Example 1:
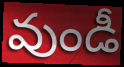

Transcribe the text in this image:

వుండీ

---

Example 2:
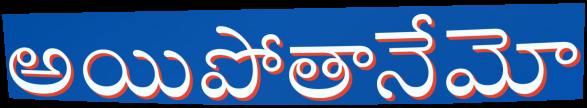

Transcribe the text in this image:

అయిపోతానేమో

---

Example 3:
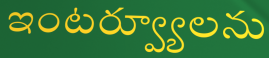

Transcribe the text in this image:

ఇంటర్వ్యూలను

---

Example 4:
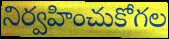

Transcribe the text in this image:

నిర్వహించుకోగల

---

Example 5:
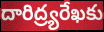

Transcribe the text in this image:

దారిద్ర్యరేఖకు